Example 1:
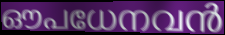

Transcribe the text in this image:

ഔപധേനവൻ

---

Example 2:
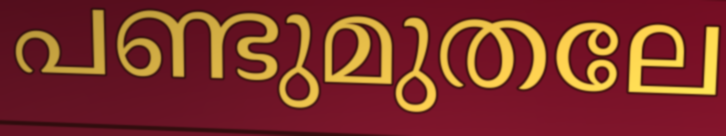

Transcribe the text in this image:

പണ്ടുമുതലേ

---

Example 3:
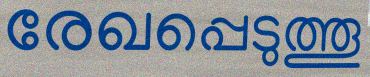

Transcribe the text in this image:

രേഖപ്പെടുത്തൂ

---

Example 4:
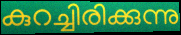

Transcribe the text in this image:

കുറച്ചിരിക്കുന്നു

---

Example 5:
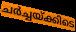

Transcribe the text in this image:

ചർച്ചയ്ക്കിടെ